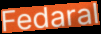
Fedaral